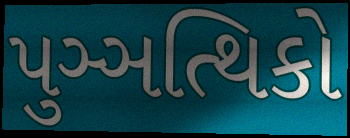
પુઞ્ઞત્થિકો